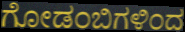
ಗೋಡಂಬಿಗಳಿಂದ